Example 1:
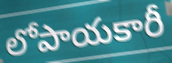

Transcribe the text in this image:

లోపాయకారీ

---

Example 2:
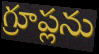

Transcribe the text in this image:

గ్రూప్లను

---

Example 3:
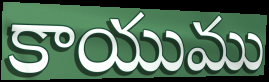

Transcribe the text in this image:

కాయుము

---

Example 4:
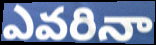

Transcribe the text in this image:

ఎవరినా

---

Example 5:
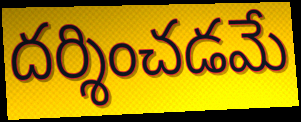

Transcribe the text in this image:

దర్శించడమే